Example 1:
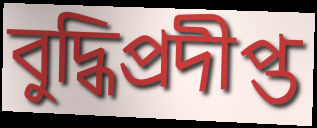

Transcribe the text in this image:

বুদ্ধিপ্রদীপ্ত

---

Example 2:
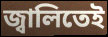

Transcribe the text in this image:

জ্বালিতেই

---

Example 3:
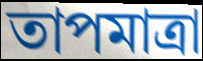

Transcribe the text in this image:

তাপমাত্রা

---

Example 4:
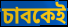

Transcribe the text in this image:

চাবকেই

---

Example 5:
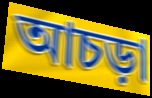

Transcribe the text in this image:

আচড়া